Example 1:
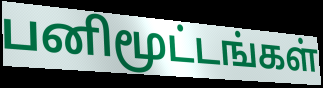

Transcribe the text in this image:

பனிமூட்டங்கள்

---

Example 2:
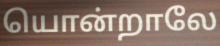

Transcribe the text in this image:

யொன்றாலே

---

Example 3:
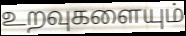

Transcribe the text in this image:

உறவுகளையும்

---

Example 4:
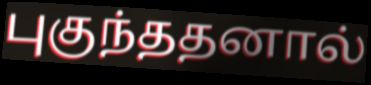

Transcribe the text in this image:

புகுந்ததனால்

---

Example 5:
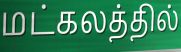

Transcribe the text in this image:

மட்கலத்தில்